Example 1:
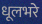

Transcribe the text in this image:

धूलभरे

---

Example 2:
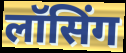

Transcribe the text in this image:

लॉसिंग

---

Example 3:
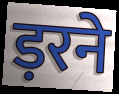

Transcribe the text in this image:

ड़रने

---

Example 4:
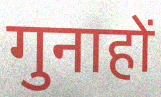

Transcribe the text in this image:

गुनाहों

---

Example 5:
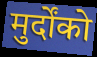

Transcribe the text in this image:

मुर्दोंको